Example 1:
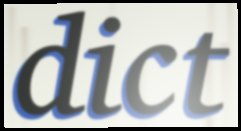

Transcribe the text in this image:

dict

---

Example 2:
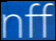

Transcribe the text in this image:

nff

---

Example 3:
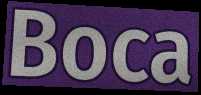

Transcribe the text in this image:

Boca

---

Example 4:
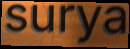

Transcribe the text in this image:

surya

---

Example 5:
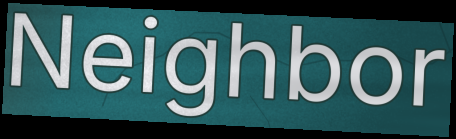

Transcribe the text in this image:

Neighbor